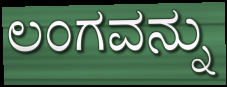
ಲಂಗವನ್ನು